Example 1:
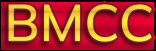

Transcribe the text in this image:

BMCC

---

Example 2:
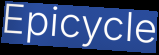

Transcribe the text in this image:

Epicycle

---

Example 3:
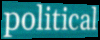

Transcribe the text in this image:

political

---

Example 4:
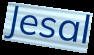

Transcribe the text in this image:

Jesal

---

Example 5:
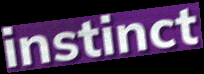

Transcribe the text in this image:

instinct